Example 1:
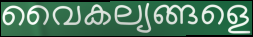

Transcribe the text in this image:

വൈകല്യങ്ങളെ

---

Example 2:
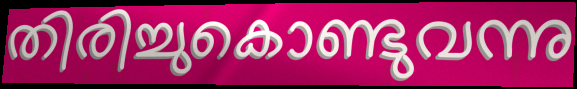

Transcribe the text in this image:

തിരിച്ചുകൊണ്ടുവന്നു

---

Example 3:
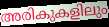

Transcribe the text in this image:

അരികുകളിലും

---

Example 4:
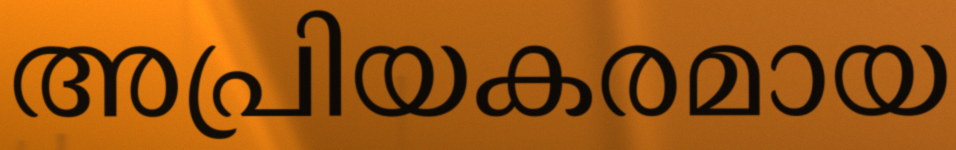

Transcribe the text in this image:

അപ്രിയകരമായ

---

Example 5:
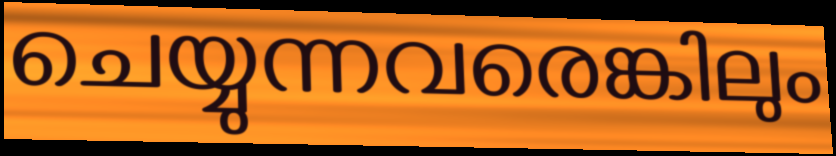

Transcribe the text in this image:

ചെയ്യുന്നവരെങ്കിലും